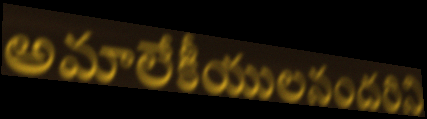
అమాలేకీయులనందరిని